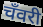
चँवरी